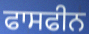
ਫਾਸਫੀਨ